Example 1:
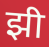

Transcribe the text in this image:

झी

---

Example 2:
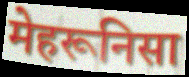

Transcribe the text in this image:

मेहरूनिसा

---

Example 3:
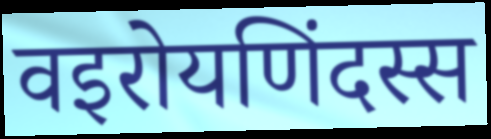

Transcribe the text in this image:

वइरोयणिंदस्स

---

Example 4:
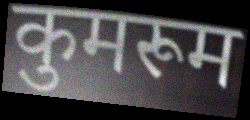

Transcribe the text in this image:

कुमरूम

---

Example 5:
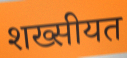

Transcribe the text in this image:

शख्सीयत